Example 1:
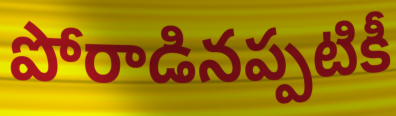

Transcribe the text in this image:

పోరాడినప్పటికీ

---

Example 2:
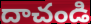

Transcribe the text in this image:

దాచండి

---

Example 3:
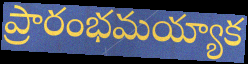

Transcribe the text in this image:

ప్రారంభమయ్యాక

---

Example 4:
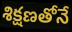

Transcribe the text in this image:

శిక్షణతోనే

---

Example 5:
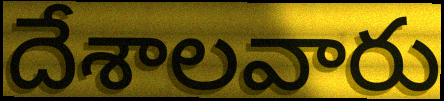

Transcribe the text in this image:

దేశాలవారు